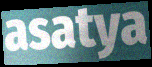
asatya